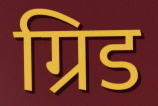
ग्रिड